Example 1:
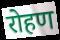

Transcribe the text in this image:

रोहण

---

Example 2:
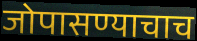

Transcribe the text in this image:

जोपासण्याचाच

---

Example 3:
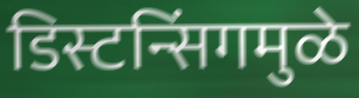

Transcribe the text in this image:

डिस्टन्सिंगमुळे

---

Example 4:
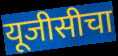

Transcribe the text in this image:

यूजीसीचा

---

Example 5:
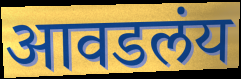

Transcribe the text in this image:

आवडलंय